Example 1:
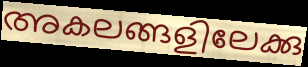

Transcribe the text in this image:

അകലങ്ങളിലേക്കു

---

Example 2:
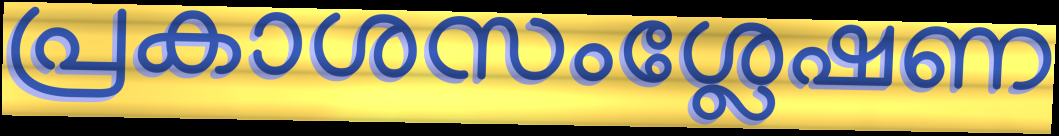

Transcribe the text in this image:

പ്രകാശസംശ്ലേഷണ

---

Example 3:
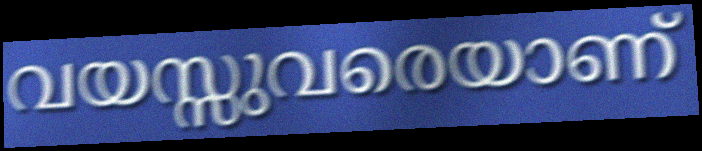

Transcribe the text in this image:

വയസ്സുവരെയാണ്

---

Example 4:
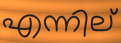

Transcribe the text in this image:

എന്നില്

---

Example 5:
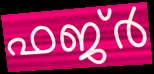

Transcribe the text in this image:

ഫജ്ർ